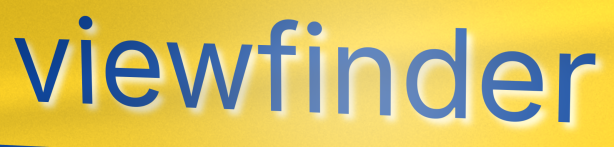
viewfinder